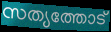
സത്യത്തോട്